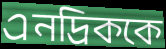
এনদ্রিককে